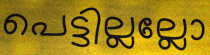
പെട്ടില്ലല്ലോ